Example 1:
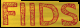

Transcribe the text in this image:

FIIDS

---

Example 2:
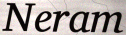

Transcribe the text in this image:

Neram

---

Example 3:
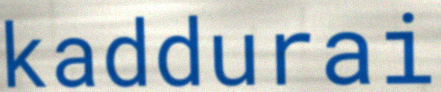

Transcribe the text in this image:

kaddurai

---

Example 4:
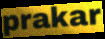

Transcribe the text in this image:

prakar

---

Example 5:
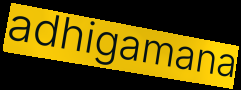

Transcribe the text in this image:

adhigamana